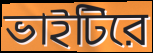
ভাইটিরে